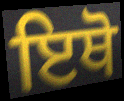
ਇਥੋ